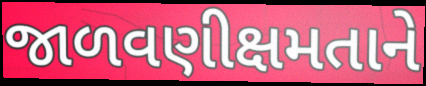
જાળવણીક્ષમતાને